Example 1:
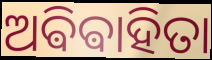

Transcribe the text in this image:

ଅଵିଵାହିତା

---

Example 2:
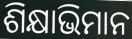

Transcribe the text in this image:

ଶିକ୍ଷାଭିମାନ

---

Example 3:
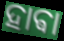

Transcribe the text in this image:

ହାଵା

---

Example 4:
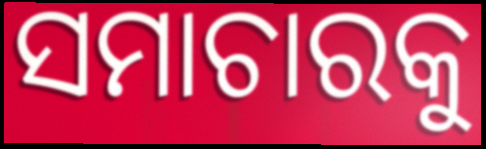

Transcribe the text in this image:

ସମାଚାରକୁ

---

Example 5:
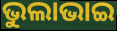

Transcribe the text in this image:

ଭୁଲାଭାଇ